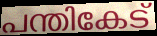
പന്തികേട്